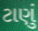
ટાણું